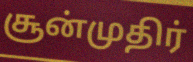
சூன்முதிர்